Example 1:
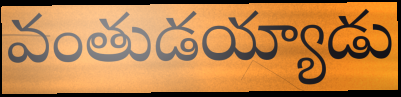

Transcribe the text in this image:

వంతుడయ్యాడు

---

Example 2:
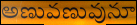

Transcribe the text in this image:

అణువణువునూ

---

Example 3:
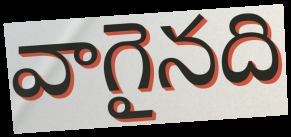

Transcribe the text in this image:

వాగైనది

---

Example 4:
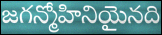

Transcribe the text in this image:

జగన్మోహినియైనది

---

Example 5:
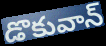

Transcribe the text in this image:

డొకువాన్